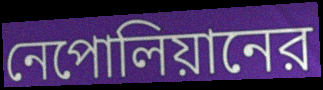
নেপোলিয়ানের